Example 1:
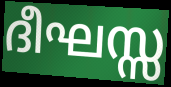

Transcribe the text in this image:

ദീഘസ്സ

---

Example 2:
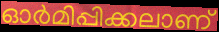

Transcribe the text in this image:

ഓർമിപ്പിക്കലാണ്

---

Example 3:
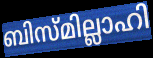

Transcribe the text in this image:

ബിസ്മില്ലാഹി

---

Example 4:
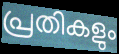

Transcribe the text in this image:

പ്രതികളും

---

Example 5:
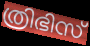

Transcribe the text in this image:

ത്രിഭിസ്